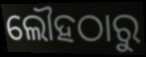
ଲୌହଠାରୁ